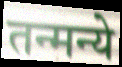
तन्मन्ये